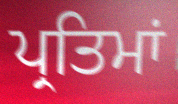
ਪ੍ਰਤਿਮਾਂ